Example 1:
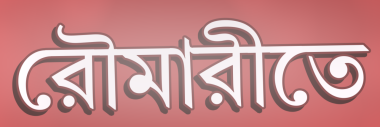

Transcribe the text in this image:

রৌমারীতে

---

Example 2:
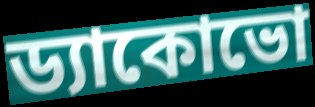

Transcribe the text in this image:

ড্যাকোভো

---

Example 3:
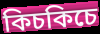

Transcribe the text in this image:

কিচকিচে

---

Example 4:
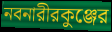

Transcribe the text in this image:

নবনারীরকুঞ্জের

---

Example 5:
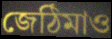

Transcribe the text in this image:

জেঠিমাও